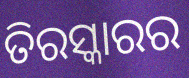
ତିରସ୍କାରର